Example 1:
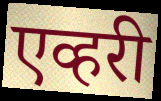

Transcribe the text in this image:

एव्हरी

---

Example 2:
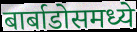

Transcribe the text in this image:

बार्बाडोसमध्ये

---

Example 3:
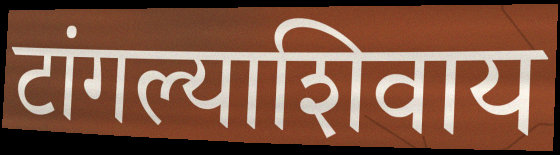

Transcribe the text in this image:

टांगल्याशिवाय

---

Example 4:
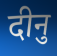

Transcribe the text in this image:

दीनु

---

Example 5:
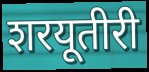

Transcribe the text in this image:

शरयूतीरी